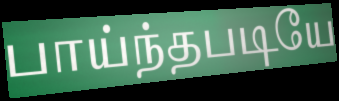
பாய்ந்தபடியே